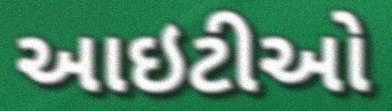
આઇટીઓ